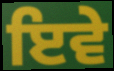
ਇਵੇ